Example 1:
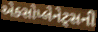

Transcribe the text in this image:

એક્સોપ્લેનેટ્સની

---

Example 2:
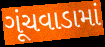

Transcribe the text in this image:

ગૂંચવાડામાં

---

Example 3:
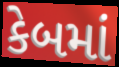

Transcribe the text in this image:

કેબમાં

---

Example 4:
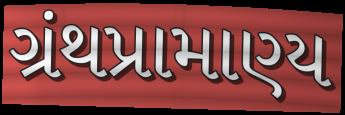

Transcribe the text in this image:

ગ્રંથપ્રામાણ્ય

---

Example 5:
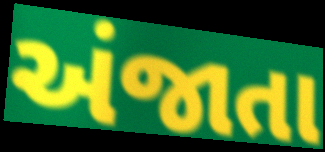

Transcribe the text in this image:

અંજાતા